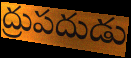
ద్రుపదుడు